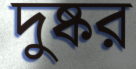
দুষ্কর